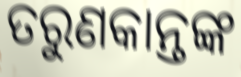
ତରୁଣକାନ୍ତଙ୍କ